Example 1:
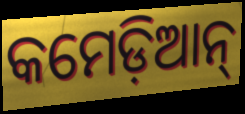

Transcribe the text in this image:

କମେଡ଼ିଆନ୍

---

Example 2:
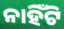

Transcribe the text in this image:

ନାହିଁଟି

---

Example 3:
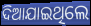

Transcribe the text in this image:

ଦିଆଯାଇଥିଲେ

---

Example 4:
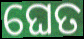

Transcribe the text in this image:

ଘେତ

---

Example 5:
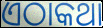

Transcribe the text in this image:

ଏଠାକଥା